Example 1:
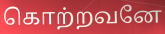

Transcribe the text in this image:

கொற்றவனே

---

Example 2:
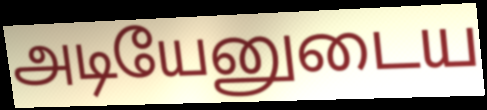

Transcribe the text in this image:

அடியேனுடைய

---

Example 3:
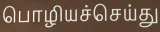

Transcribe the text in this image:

பொழியச்செய்து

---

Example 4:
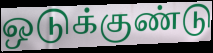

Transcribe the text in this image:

ஒடுக்குண்டு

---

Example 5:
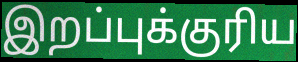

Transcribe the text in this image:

இறப்புக்குரிய